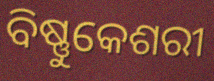
ବିଷ୍ଣୁକେଶରୀ